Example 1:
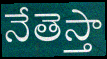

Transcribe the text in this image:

నేతెస్తా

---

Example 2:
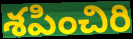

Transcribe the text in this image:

శపించిరి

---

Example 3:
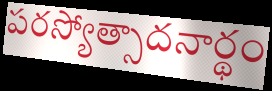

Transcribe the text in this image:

పరస్యోత్సాదనార్థం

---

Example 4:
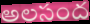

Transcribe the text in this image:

అలసంద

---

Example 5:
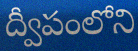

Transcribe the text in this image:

ద్వీపంలోని